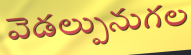
వెడల్పునుగల